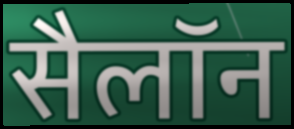
सैलॉन